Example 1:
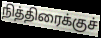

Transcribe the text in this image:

நித்திரைக்குச்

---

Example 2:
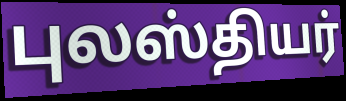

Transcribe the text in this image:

புலஸ்தியர்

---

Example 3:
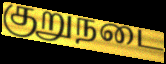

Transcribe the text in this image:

குறுநடை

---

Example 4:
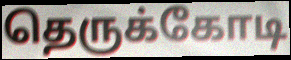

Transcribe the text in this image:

தெருக்கோடி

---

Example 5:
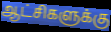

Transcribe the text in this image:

ஆட்சிகளுக்கு